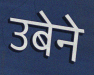
उबेने